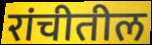
रांचीतील